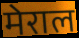
मेराल